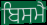
ਬਿਸਮੈ